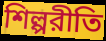
শিল্পরীতি